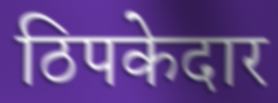
ठिपकेदार